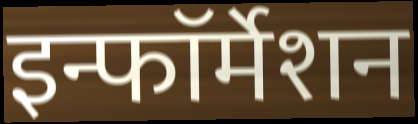
इन्फॉर्मेशन